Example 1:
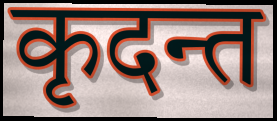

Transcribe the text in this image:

कृदन्त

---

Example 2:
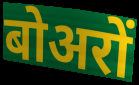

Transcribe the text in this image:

बोअरों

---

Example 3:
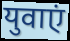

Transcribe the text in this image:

युवाएं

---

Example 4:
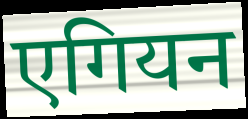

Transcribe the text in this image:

एगियन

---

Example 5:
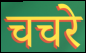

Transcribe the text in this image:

चचरे